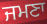
ਜਮਣਾ